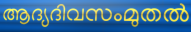
ആദ്യദിവസംമുതൽ